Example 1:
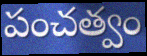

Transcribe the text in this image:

పంచత్వం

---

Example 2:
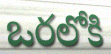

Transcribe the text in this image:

ఒరలోకి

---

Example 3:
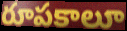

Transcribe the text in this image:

రూపకాలూ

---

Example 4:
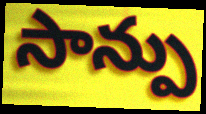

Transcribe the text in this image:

సాన్పు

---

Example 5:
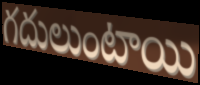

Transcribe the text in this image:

గదులుంటాయి